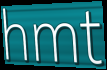
hmt